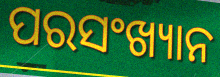
ପରସଂଖ୍ୟାନ